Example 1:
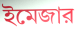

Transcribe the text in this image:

ইমেজার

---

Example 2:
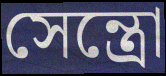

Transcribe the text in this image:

সেন্ত্রো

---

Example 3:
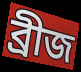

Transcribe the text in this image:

ব্রীজ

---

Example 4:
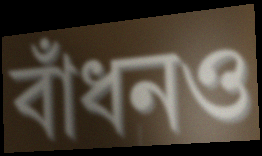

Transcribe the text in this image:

বাঁধনও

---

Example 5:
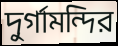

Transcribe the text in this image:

দুর্গামন্দির